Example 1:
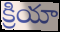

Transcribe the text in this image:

క్రియా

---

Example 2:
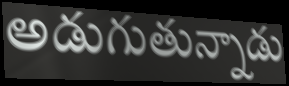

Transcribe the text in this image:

అడుగుతున్నాడు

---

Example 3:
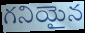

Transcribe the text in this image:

గనియైన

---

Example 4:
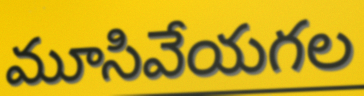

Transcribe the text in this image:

మూసివేయగల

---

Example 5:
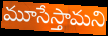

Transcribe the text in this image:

మూసేస్తామని